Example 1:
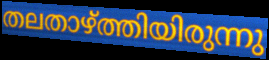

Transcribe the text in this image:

തലതാഴ്ത്തിയിരുന്നു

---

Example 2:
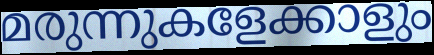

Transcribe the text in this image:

മരുന്നുകളേക്കാളും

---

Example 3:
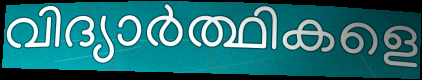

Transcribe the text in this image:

വിദ്യാർത്ഥികളെ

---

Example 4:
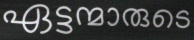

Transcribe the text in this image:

ഏട്ടന്മാരുടെ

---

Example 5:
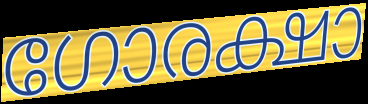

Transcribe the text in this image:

ഗോരക്ഷാ